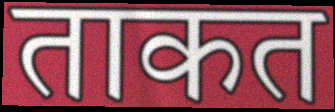
ताकत